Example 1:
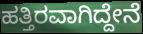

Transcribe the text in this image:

ಹತ್ತಿರವಾಗಿದ್ದೇನೆ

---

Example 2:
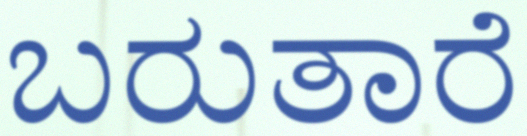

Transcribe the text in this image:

ಬರುತಾರೆ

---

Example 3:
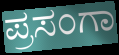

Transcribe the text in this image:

ಪ್ರಸಂಗಾ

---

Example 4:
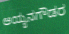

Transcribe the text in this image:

ಅಯ್ಯನಗೌಡರ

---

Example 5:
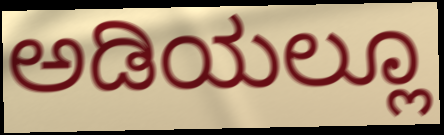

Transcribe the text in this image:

ಅಡಿಯಲ್ಲೂ